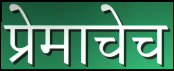
प्रेमाचेच